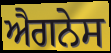
ਐਗਨੇਸ